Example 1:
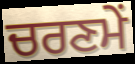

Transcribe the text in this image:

ਚਰਣਮੇਂ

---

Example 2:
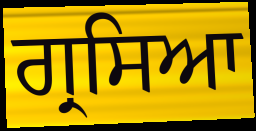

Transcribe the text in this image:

ਗ੍ਰਸਿਆ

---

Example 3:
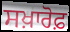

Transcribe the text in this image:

ਸਖ਼ਾਰੋਫ਼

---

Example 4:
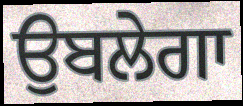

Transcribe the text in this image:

ਉਬਲੇਗਾ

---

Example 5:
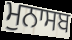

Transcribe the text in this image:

ਮੁਨਾਸਬ